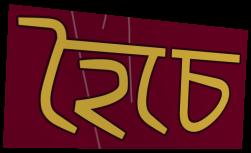
হৈচে